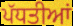
ਪੱਧਤੀਆਂ